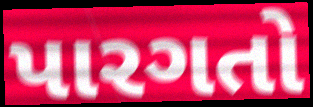
પારગતો